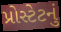
પ્રોસ્ટેટનું